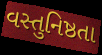
વસ્તુનિષ્ઠતા